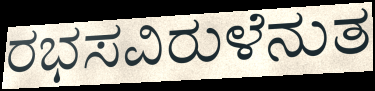
ರಭಸವಿರುಳೆನುತ